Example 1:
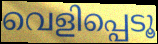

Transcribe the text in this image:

വെളിപ്പെടൂ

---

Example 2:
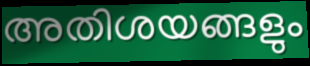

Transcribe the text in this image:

അതിശയങ്ങളും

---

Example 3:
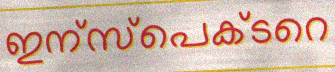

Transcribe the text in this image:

ഇന്സ്പെക്ടറെ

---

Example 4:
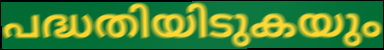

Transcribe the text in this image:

പദ്ധതിയിടുകയും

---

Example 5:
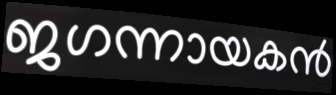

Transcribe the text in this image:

ജഗന്നായകൻ